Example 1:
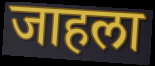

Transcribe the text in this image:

जाहला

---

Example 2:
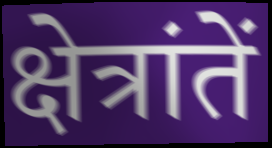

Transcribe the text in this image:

क्षेत्रांतें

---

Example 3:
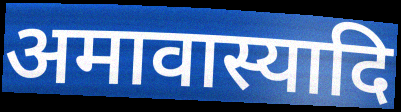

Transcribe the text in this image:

अमावास्यादि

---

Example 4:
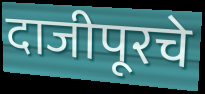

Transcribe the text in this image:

दाजीपूरचे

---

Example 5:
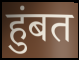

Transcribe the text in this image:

हुंबत